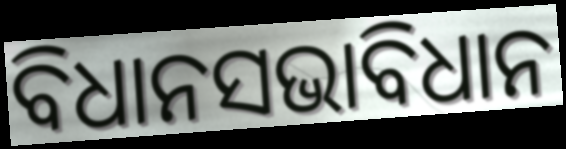
ବିଧାନସଭାବିଧାନ